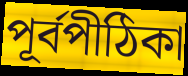
পূর্বপীঠিকা